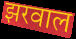
झरवाल